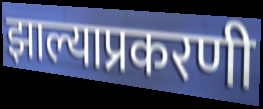
झाल्याप्रकरणी